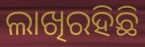
ଲାଖିରହିଛି